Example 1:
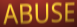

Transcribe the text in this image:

ABUSE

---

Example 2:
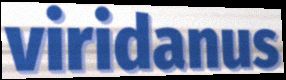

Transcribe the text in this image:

viridanus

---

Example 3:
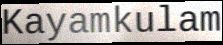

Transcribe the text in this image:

Kayamkulam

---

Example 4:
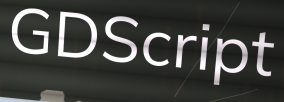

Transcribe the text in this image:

GDScript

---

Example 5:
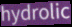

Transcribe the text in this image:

hydrolic